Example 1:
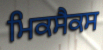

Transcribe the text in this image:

ਮਿਕਸੈਕਸ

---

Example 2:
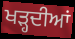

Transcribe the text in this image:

ਖੜ੍ਹਦੀਆਂ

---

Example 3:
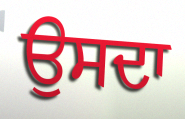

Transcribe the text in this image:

ਉਸਦਾ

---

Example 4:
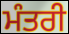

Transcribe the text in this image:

ਮੰਤਰੀ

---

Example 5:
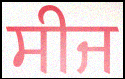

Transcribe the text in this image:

ਸੀਜ